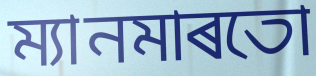
ম্যানমাৰতো